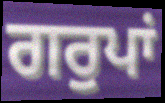
ਗਰੁਪਾਂ